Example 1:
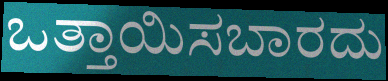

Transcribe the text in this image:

ಒತ್ತಾಯಿಸಬಾರದು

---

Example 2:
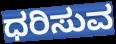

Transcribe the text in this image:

ಧರಿಸುವ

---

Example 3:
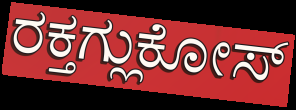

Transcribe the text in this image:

ರಕ್ತಗ್ಲುಕೋಸ್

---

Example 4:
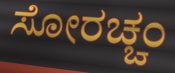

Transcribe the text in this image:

ಸೋರಚ್ಚಂ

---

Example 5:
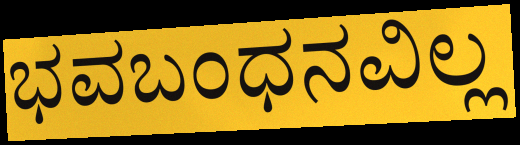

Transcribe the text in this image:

ಭವಬಂಧನವಿಲ್ಲ